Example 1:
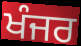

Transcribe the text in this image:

ਖੰਜਰ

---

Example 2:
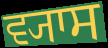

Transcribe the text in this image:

ਵ੍ਯਾਸ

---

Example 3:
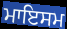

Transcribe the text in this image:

ਮਾਇਸਮ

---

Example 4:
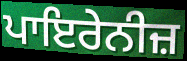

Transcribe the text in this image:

ਪਾਇਰੇਨੀਜ਼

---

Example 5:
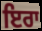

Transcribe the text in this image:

ਇਰਾ